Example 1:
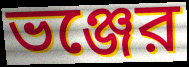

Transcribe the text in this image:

ভঞ্জের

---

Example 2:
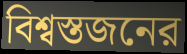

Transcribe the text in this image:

বিশ্বস্তজনের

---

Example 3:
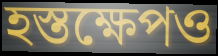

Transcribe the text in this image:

হস্তক্ষেপও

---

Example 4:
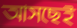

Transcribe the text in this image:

আসছেই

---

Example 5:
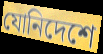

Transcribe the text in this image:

যোনিদেশে